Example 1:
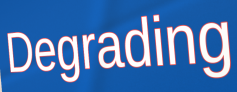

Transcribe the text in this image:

Degrading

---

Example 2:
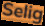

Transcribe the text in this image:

Selig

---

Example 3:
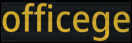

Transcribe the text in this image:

officege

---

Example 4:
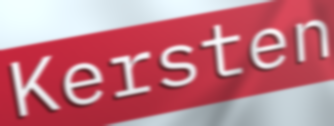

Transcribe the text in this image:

Kersten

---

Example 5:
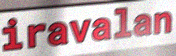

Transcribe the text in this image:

iravalan